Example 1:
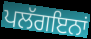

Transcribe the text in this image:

ਪਲੱਗਇਨਾਂ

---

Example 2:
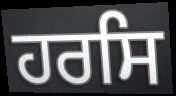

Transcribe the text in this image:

ਹਰਸਿ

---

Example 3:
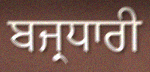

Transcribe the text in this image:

ਬਜ੍ਰਧਾਰੀ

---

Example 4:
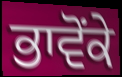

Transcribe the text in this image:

ਭਾਵੋਂਕੇ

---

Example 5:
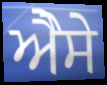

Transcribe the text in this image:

ਐੇਸੇ